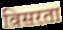
विसरता